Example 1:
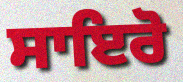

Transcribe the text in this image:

ਸਾਇਰੋ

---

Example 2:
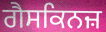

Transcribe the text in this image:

ਗੈਸਕਿਨਜ਼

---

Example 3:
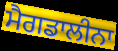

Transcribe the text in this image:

ਮੈਗਡਾਲੀਨਾ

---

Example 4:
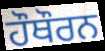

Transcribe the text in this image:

ਹੌਥੌਰਨ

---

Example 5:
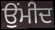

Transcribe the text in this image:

ਉਂਮੀਦ